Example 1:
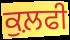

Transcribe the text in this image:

ਕੁਲ਼ਫੀ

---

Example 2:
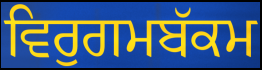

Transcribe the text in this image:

ਵਿਰੁਗਮਬੱਕਮ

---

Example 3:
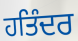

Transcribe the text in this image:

ਹਤਿੰਦਰ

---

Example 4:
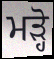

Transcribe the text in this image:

ਮੜ੍ਹੋ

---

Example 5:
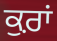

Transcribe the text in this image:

ਕ਼ੁਰਾਂ